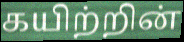
கயிற்றின்